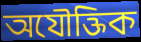
অযৌক্তিক